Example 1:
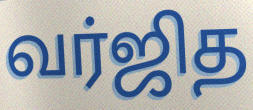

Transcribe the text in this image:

வர்ஜித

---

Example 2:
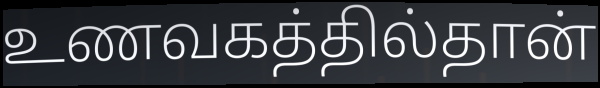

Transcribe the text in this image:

உணவகத்தில்தான்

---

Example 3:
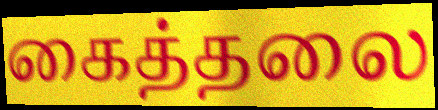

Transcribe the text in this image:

கைத்தலை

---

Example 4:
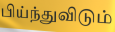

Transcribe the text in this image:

பிய்ந்துவிடும்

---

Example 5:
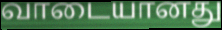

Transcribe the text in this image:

வாடையானது